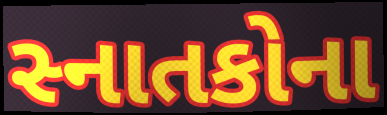
સ્નાતકોના